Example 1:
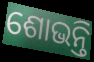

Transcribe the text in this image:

ଶୋଭନ୍ତି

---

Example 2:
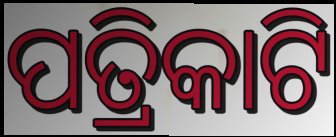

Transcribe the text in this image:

ପତ୍ରିକାଟି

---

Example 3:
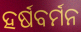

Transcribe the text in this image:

ହର୍ଷବର୍ମନ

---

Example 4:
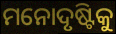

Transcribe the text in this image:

ମନୋଦୃଷ୍ଟିକୁ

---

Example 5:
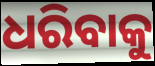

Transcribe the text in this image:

ଧରିବାକୁ